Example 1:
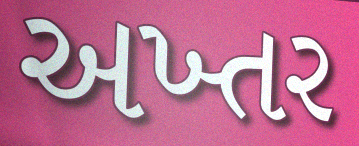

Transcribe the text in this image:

અખ્તર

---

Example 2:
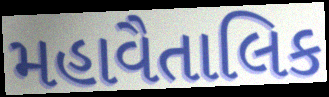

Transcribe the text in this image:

મહાવૈતાલિક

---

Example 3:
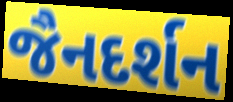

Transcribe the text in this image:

જૈનદર્શન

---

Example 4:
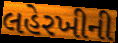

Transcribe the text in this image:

લહેરખીની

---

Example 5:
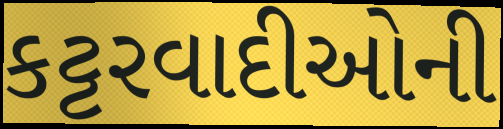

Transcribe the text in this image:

કટ્ટરવાદીઓની